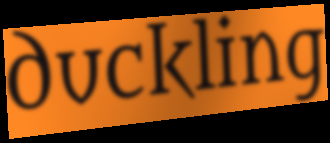
duckling